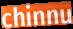
chinnu